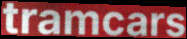
tramcars